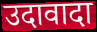
उदावादा